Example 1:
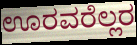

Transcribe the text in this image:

ಊರವರೆಲ್ಲರ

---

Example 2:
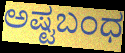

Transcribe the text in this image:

ಅಷ್ಟಬಂಧ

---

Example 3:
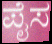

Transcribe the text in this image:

ಪೈಸ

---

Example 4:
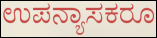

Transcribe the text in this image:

ಉಪನ್ಯಾಸಕರೂ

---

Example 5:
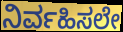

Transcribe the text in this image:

ನಿರ್ವಹಿಸಲೇ